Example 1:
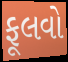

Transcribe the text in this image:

ફૂલવો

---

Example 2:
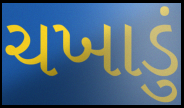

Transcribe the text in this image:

ચખાડું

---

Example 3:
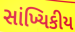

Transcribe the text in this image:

સાંખ્યિકીય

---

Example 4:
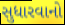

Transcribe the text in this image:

સુધારવાનો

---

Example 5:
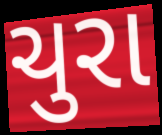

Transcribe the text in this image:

ચુરા